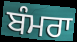
ਬੰਮਰਾ